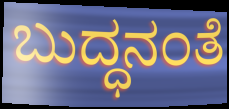
ಬುದ್ಧನಂತೆ